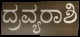
ದ್ರವ್ಯರಾಶಿ